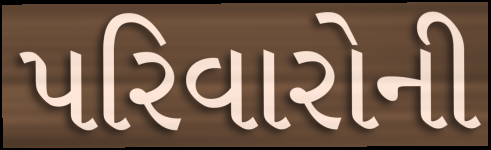
પરિવારોની